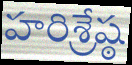
హరిశ్రేష్ఠ